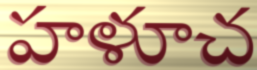
హళూచ